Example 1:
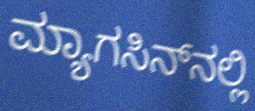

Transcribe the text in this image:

ಮ್ಯಾಗಸಿನ್‍ನಲ್ಲಿ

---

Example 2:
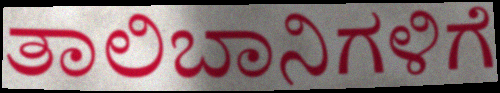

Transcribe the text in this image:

ತಾಲಿಬಾನಿಗಳಿಗೆ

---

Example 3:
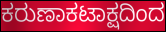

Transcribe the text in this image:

ಕರುಣಾಕಟಾಕ್ಷದಿಂದ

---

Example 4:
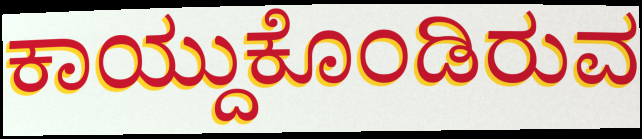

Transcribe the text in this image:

ಕಾಯ್ದುಕೊಂಡಿರುವ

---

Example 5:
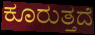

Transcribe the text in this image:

ಕೂರುತ್ತದೆ